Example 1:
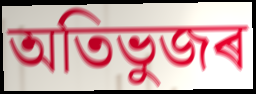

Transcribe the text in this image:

অতিভুজৰ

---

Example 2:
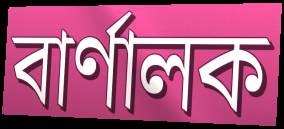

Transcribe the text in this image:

বাৰ্ণালক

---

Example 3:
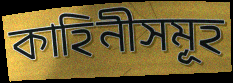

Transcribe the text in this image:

কাহিনীসমূহ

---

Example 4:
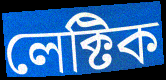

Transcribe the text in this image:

লেক্টিক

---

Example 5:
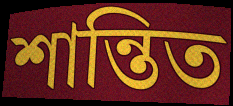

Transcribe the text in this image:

শান্তিত